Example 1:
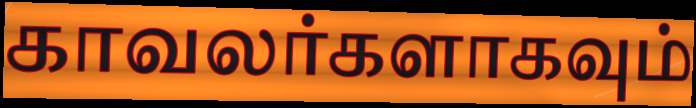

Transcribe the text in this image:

காவலர்களாகவும்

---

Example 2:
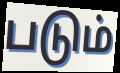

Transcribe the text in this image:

படும்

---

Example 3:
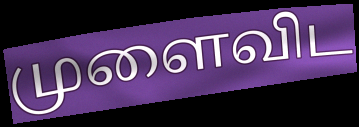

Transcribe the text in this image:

முளைவிட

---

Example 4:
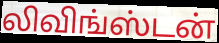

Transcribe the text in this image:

லிவிங்ஸ்டன்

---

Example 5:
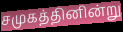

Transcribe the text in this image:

சமுகத்தினின்று